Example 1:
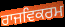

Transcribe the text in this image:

ਰਾਜਵਿਕਰਮ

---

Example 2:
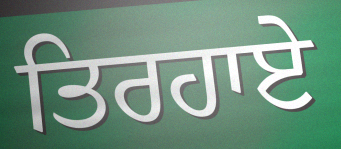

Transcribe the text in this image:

ਤਿਰਹਾਏ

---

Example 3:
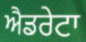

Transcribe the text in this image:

ਐਡਰੇਟਾ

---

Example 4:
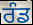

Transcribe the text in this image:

ਰੰਡ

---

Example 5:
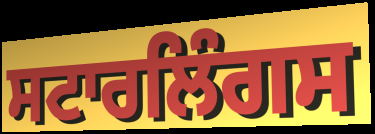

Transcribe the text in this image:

ਸਟਾਰਲਿੰਗਸ